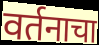
वर्तनाचा